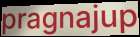
pragnajup